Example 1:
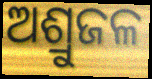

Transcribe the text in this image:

ଅଶ୍ରୁଜଳ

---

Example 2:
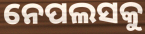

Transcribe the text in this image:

ନେପଲସକୁ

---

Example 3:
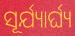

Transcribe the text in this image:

ସୂର୍ଯ୍ୟାର୍ଘ୍ୟ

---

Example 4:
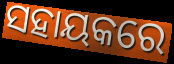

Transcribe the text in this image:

ସହାୟକରେ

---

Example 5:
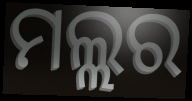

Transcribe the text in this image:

ମଲ୍ଲର